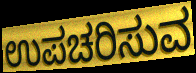
ಉಪಚರಿಸುವ